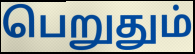
பெறுதும்